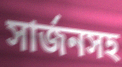
সার্জনসহ